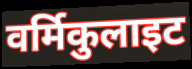
वर्मिकुलाइट